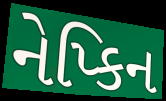
નેપ્કિન